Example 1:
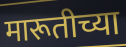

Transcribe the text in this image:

मारूतीच्या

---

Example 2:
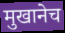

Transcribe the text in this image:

मुखानेच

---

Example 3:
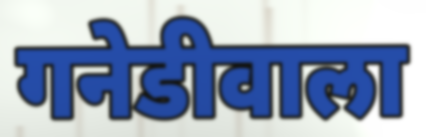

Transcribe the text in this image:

गनेडीवाला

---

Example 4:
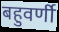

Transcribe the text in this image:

बहुवर्णी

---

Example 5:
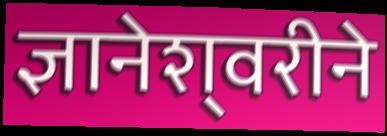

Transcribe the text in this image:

ज्ञानेश्वरीने